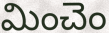
మించెం